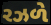
રઝળે